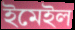
ইমেইল